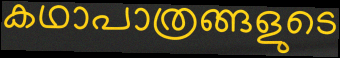
കഥാപാത്രങ്ങളുടെ